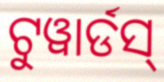
ଟୁୱାର୍ଡସ୍